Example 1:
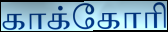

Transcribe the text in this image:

காக்கோரி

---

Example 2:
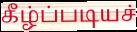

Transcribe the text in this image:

கீழ்ப்படியச்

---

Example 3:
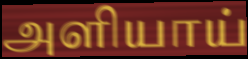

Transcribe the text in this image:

அளியாய்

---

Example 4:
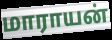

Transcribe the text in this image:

மாராயன்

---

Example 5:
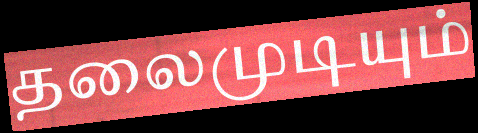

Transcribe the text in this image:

தலைமுடியும்